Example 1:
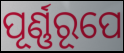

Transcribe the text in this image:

ପୂର୍ଣ୍ଣରୂପେ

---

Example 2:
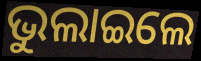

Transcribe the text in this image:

ଭୁଲାଇଲେ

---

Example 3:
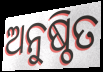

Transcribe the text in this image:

ଅନୁଷ୍ଠିତ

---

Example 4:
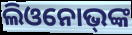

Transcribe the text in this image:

ଲିଓନୋଭ୍‌ଙ୍କ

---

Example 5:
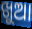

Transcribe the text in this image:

ଖୁଆ